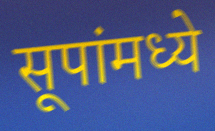
सूपांमध्ये